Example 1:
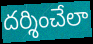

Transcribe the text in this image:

దర్శించేలా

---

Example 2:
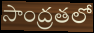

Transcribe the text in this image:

సాంద్రతలో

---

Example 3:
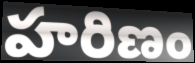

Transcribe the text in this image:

హరిణం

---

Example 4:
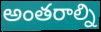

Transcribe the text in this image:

అంతరాల్ని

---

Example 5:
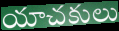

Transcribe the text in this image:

యాచకులు